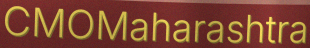
CMOMaharashtra